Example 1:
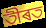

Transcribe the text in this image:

তীৰত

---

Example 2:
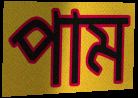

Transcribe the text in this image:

পাম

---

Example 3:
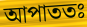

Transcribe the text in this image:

আপাততঃ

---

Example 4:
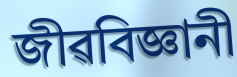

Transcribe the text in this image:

জীৱবিজ্ঞানী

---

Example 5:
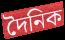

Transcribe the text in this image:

দৈনিক